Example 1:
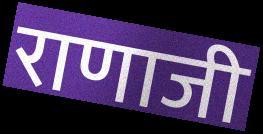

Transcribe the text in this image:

राणाजी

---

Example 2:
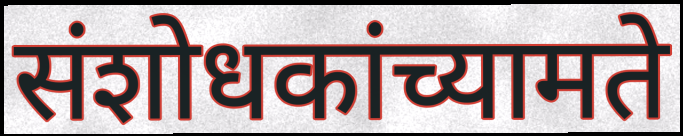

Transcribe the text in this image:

संशोधकांच्यामते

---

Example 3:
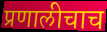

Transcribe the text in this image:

प्रणालीचाच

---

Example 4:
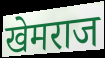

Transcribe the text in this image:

खेमराज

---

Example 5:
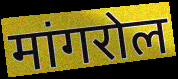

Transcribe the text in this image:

मांगरोल